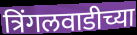
त्रिंगलवाडीच्या